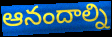
ఆనందాల్ని